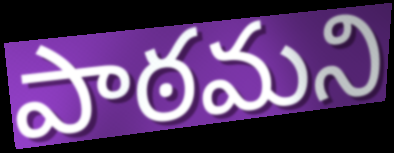
పాఠమని